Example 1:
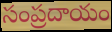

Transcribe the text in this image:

సంప్రదాయం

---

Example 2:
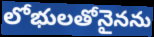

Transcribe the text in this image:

లోభులతోనైనను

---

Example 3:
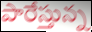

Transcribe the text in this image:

పారేస్తున్న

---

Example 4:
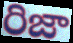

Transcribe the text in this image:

రిజా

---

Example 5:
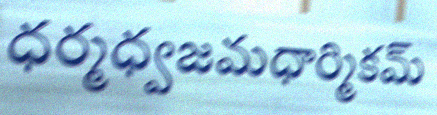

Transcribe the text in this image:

ధర్మధ్వజమధార్మికమ్